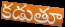
కడుతూ